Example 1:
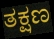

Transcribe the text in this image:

ತಕ್ಷಣ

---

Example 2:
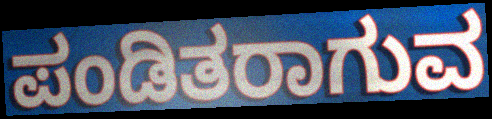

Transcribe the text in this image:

ಪಂಡಿತರಾಗುವ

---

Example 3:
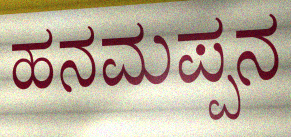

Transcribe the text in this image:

ಹನಮಪ್ಪನ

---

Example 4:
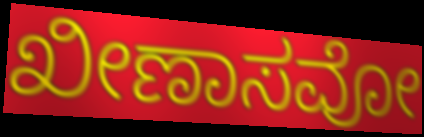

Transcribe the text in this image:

ಖೀಣಾಸವೋ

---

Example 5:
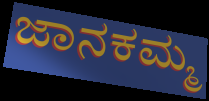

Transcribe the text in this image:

ಜಾನಕಮ್ಮ